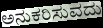
ಅನುಕರಿಸುವದು